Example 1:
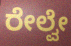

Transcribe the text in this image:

ರೇಲ್ವೇ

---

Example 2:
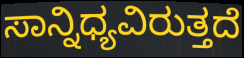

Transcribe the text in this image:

ಸಾನ್ನಿಧ್ಯವಿರುತ್ತದೆ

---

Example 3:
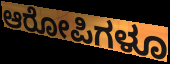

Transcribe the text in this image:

ಆರೋಪಿಗಳೂ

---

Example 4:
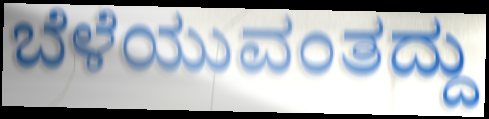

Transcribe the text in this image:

ಬೆಳೆಯುವಂತದ್ದು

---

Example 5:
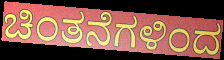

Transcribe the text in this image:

ಚಿಂತನೆಗಳಿಂದ